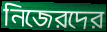
নিজেরদের